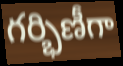
గర్భిణీగా